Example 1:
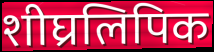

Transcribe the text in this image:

शीघ्रलिपिक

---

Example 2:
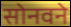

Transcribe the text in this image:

सोनवने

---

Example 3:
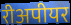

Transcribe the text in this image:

रीअपीयर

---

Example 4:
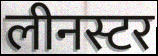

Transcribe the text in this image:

लीनस्टर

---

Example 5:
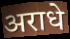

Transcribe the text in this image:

अराधे